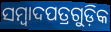
ସମ୍ୱାଦପତ୍ରଗୁଡ଼ିକ